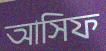
আসিফ